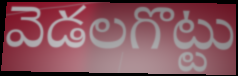
వెడలగొట్టు